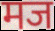
मज